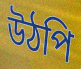
উঠপি